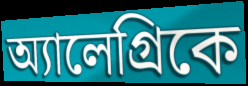
অ্যালেগ্রিকে